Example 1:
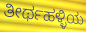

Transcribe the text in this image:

ತೀರ್ಥಹಳ್ಳಿಯ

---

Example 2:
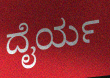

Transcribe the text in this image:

ದೈರ್ಯ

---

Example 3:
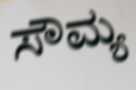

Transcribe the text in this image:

ಸೌಮ್ಯ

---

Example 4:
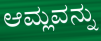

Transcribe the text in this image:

ಆಮ್ಲವನ್ನು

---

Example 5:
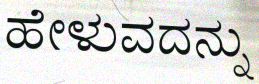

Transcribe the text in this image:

ಹೇಳುವದನ್ನು